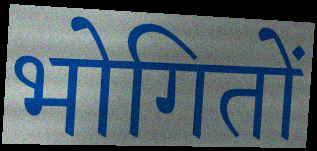
भोगितों